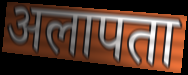
अलापता